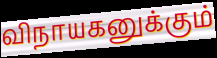
விநாயகனுக்கும்